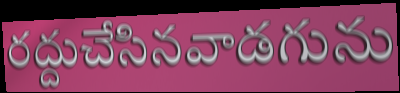
రద్దుచేసినవాడగును